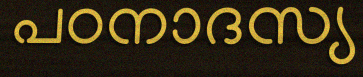
പഠനാദസ്യ